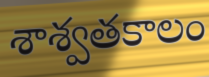
శాశ్వతకాలం